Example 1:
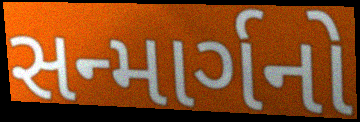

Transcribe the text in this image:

સન્માર્ગનો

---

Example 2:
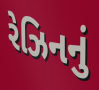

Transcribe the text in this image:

રેઝિનનું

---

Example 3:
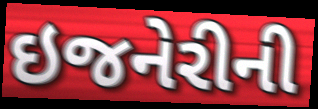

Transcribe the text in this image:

ઇજનેરીની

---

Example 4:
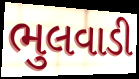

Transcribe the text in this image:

ભુલવાડી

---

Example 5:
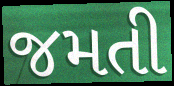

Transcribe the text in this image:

જમતી